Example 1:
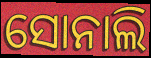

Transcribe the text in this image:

ସୋନାଲି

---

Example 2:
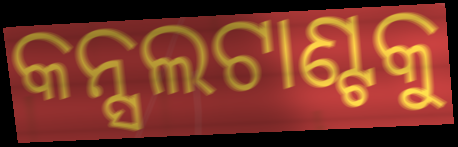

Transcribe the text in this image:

କନ୍ସଲଟାଣ୍ଟକୁ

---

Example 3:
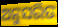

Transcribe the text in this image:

ଅନୁସରିତ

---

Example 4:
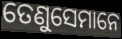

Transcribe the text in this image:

ତେଣୁସେମାନେ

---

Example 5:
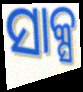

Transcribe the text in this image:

ସାକ୍ସ